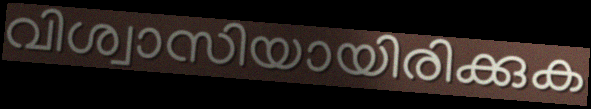
വിശ്വാസിയായിരിക്കുക